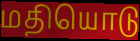
மதியொடு